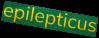
epilepticus